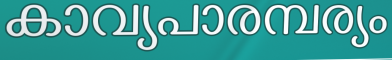
കാവ്യപാരമ്പര്യം